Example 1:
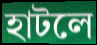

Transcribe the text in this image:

হাটলে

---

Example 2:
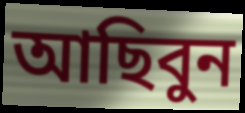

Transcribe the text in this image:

আছিবুন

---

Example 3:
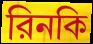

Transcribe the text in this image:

রিনকি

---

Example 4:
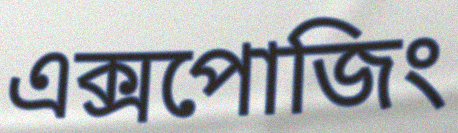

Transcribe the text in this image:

এক্সপোজিং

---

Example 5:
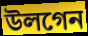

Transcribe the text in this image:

উলগেন